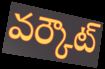
వర్కౌట్